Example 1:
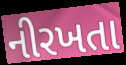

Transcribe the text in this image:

નીરખતા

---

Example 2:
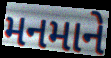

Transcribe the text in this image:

મનમાને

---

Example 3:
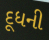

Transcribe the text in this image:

દૂધની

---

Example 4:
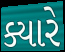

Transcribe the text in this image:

ક્‍યારે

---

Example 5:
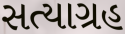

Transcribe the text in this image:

સત્‍યાગ્રહ